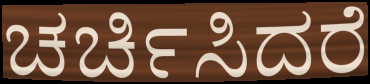
ಚರ್ಚಿಸಿದರೆ